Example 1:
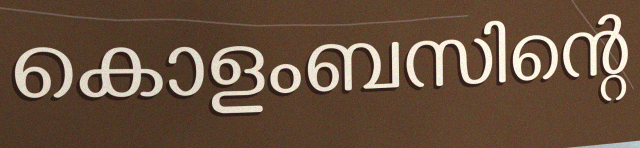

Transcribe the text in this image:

കൊളംബസിന്റെ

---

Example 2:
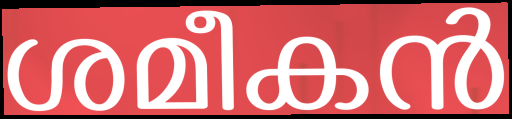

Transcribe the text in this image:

ശമീകൻ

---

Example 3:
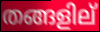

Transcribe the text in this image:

തങ്ങളില്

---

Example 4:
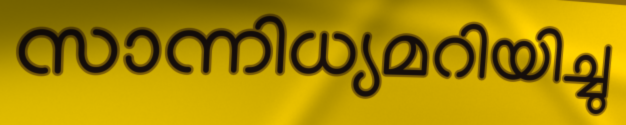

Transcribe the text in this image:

സാന്നിധ്യമറിയിച്ചു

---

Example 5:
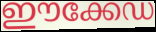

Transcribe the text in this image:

ഈക്കേഡ